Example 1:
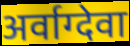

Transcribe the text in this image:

अर्वाग्देवा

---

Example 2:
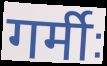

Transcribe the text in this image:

गर्मीः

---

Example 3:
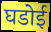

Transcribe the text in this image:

घडोई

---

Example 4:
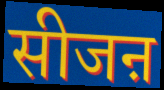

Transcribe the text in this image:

सीजऩ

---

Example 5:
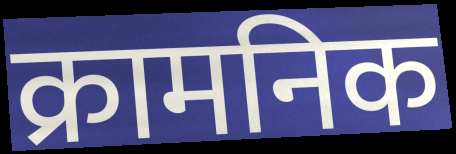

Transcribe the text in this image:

क्रामनिक